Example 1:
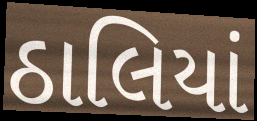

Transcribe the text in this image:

ઠાલિયાં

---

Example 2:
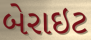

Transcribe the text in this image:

બેરાઇટ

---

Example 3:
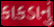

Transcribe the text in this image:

કાકડાનું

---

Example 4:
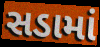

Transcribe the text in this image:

સડામાં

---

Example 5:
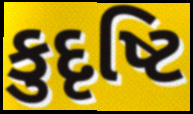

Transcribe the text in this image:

કુદૃષ્ટિ